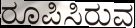
ರೂಪಿಸಿರುವ